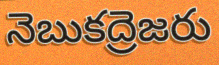
నెబుకద్రెజరు